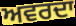
ਅਵਰਦਾ